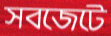
সবজেটে